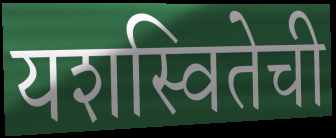
यशस्वितेची